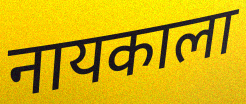
नायकाला